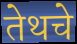
तेथचे